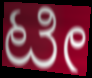
ಟೀ